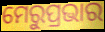
ମେରୁପ୍ରଭାର